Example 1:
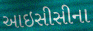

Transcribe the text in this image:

આઇસીસીના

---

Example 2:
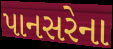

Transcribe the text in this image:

પાનસરેના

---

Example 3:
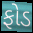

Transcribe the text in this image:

ફોડ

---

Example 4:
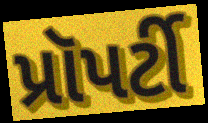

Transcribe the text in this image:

પ્રૉપર્ટી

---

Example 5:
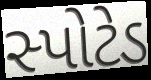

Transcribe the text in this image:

સ્પોટેડ